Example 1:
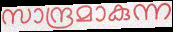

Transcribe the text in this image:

സാന്ദ്രമാകുന്ന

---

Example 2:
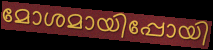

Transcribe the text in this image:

മോശമായിപ്പോയി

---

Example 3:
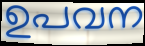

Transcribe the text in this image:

ഉപവന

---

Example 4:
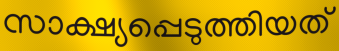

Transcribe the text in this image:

സാക്ഷ്യപ്പെടുത്തിയത്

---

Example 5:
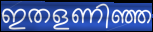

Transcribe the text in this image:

ഇതളണിഞ്ഞ